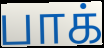
பாக்